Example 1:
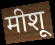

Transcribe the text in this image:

मीशू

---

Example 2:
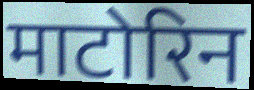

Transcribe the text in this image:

माटोरिन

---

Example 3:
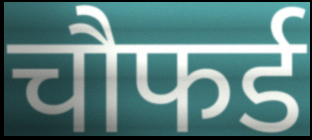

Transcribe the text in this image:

चौफर्ड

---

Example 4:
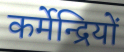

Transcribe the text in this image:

कर्मेन्द्रियों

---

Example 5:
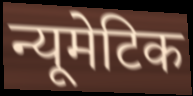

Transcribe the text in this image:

न्यूमेटिक